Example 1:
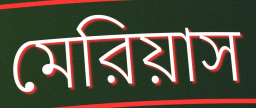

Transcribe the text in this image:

মেরিয়াস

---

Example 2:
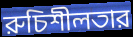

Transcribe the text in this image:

রুচিশীলতার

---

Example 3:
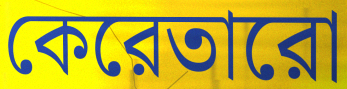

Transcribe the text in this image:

কেরেতারো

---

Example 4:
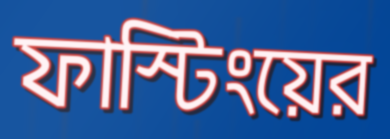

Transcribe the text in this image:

ফাস্টিংয়ের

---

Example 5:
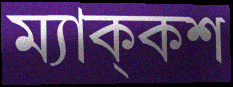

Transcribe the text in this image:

ম্যাক্‌কশ